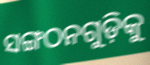
ସଙ୍ଗଠନଗୁଡ଼ିକୁ